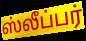
ஸ்லீப்பர்